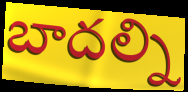
బాదల్ని